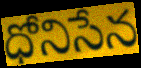
ధోనిసేన